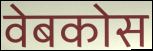
वेबकोस